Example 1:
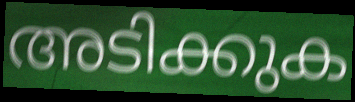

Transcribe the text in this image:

അടിക്കുക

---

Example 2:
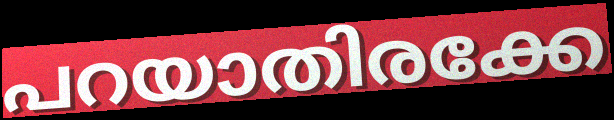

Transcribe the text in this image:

പറയാതിരക്കേ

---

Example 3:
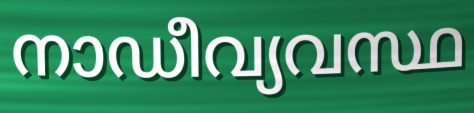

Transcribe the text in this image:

നാഡീവ്യവസ്ഥ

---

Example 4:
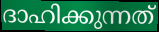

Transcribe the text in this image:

ദാഹിക്കുന്നത്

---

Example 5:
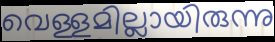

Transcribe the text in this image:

വെള്ളമില്ലായിരുന്നു